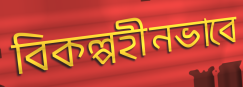
বিকল্পহীনভাবে